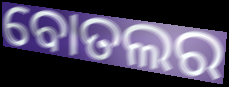
ବୋତଲର